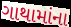
ગાથામાંના